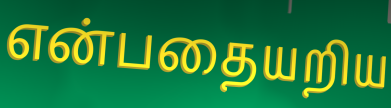
என்பதையறிய